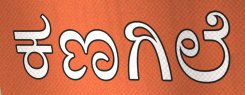
ಕಣಗಿಲೆ